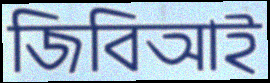
জিবিআই